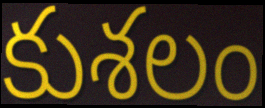
కుశలం